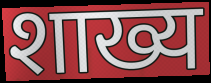
शाख्य